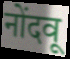
नोंदवू